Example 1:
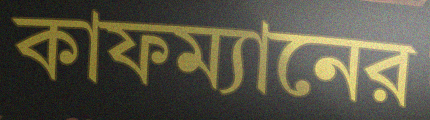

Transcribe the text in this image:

কাফম্যানের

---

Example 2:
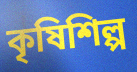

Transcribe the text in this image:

কৃষিশিল্প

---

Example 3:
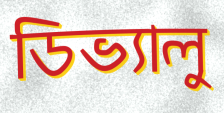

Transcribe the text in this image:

ডিভ্যালু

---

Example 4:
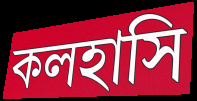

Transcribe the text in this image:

কলহাসি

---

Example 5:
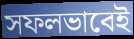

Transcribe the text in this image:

সফলভাবেই